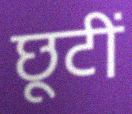
छूटीं